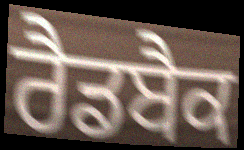
ਰੈਡਬੈਕ